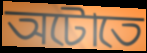
অটোতে